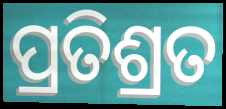
ପ୍ରତିଶ୍ରତ